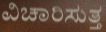
ವಿಚಾರಿಸುತ್ತ